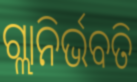
ଗ୍ଲାନିର୍ଭବତି